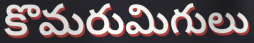
కొమరుమిగులు